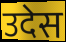
उदेस